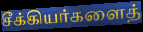
சீக்கியர்களைத்